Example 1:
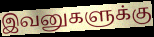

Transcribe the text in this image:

இவனுகளுக்கு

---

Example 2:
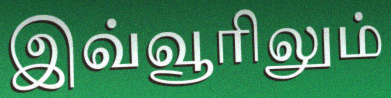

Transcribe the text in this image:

இவ்வூரிலும்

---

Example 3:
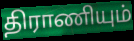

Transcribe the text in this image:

திராணியும்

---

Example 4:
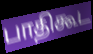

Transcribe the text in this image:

பாதிகூட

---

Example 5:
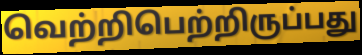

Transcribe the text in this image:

வெற்றிபெற்றிருப்பது